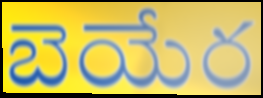
బెయేర